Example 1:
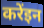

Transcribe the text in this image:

करेंइन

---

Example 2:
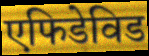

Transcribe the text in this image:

एफिडेविड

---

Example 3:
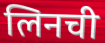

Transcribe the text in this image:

लिनची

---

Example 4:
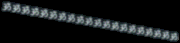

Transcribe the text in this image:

ॐॐॐॐॐॐॐॐॐॐॐॐॐॐॐॐॐॐॐॐ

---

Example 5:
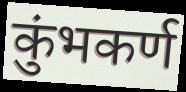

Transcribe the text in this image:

कुंभकर्ण